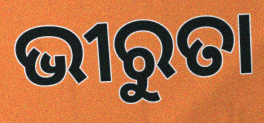
ଭୀରୁତା